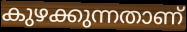
കുഴക്കുന്നതാണ്